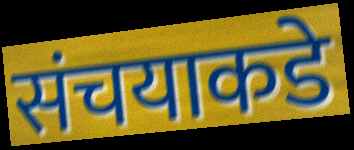
संचयाकडे